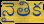
నైతిక